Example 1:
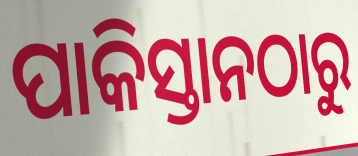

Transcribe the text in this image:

ପାକିସ୍ତାନଠାରୁ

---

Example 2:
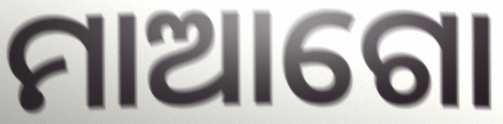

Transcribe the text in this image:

ମାଆଗୋ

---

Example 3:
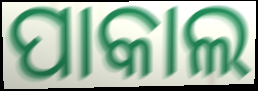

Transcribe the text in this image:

ପାକାଲ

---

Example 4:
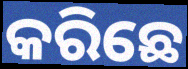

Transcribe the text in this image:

କରିଛେ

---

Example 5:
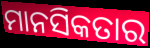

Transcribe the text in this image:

ମାନସିକତାର